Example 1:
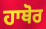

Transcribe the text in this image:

ਹਾਥੋਰ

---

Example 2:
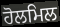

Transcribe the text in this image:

ਹੋਲਮਿਲ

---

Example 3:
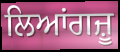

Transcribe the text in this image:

ਲਿਆਂਗਜ਼ੂ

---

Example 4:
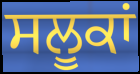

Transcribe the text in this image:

ਸਲੂਕਾਂ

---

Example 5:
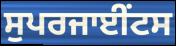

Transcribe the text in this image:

ਸੁਪਰਜਾਈਂਟਸ